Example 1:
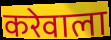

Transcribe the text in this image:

करेवाला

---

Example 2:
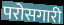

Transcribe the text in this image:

परोसगारी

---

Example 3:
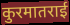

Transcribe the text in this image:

कुरमातराई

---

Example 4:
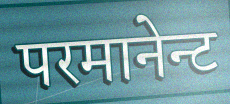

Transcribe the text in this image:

परमानेन्ट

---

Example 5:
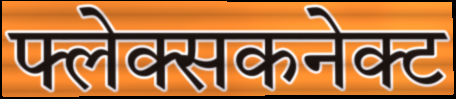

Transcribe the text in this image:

फ्लेक्सकनेक्ट